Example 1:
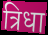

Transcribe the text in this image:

त्रिधा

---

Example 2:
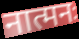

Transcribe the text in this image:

नात्मनः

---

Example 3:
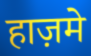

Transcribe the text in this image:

हाज़मे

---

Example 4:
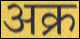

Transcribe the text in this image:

अक्र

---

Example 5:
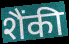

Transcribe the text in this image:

शैंकी